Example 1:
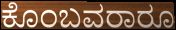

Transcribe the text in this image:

ಕೊಂಬವರಾರೂ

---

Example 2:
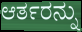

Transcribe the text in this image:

ಆರ್ತರನ್ನು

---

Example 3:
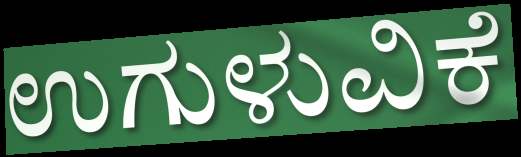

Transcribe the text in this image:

ಉಗುಳುವಿಕೆ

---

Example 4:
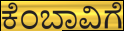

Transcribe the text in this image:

ಕೆಂಬಾವಿಗೆ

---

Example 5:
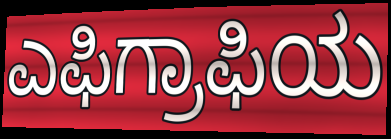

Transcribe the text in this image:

ಎಫಿಗ್ರಾಫಿಯ